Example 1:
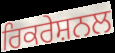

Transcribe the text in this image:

ਰਿਕਰੇਸ਼ਨਲ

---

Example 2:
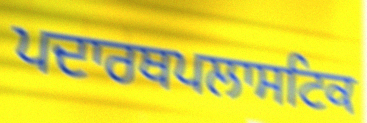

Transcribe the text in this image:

ਪਦਾਰਥਪਲਾਸਟਿਕ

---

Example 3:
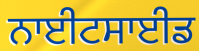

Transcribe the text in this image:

ਨਾਈਟਸਾਈਡ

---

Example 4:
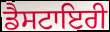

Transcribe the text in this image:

ਡੈਸਟਾਇਰੀ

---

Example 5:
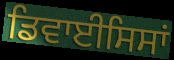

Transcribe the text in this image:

ਡਿਵਾਈਸਿਸਾਂ